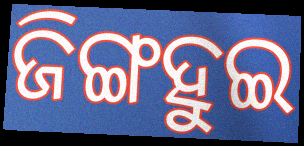
ଜିଙ୍ଗହୁଇ